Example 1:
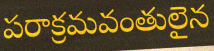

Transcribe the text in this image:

పరాక్రమవంతులైన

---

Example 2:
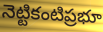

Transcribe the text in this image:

నెట్టికంటిప్రభూ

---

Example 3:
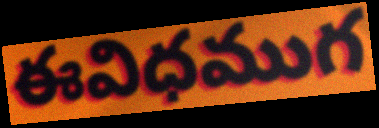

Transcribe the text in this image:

ఈవిధముగ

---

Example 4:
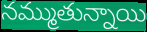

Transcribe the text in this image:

నమ్ముతున్నాయి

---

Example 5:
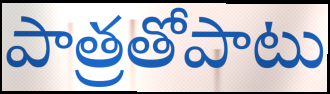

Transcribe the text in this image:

పాత్రతోపాటు